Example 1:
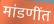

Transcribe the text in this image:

मांडणींत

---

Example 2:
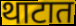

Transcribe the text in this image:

थाटात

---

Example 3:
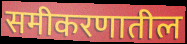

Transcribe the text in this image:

समीकरणातील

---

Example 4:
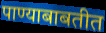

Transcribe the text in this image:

पाण्याबाबतीत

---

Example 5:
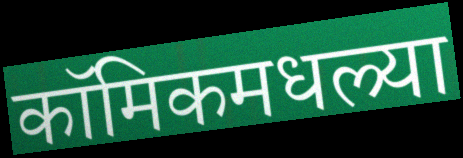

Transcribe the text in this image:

कॉमिकमधल्या